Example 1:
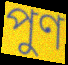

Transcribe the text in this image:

পুণ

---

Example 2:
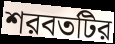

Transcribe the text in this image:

শরবতটির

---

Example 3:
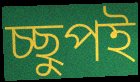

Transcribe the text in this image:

চ্ছুপই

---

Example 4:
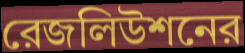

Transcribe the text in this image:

রেজলিউশনের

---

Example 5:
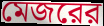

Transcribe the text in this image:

মেজরের